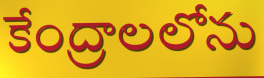
కేంద్రాలలోను